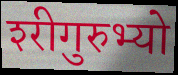
श्रीगुरुभ्यो